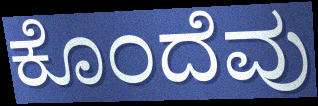
ಕೊಂದೆವು